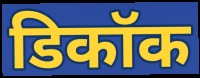
डिकॉक